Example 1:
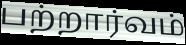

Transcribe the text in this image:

பற்றார்வம்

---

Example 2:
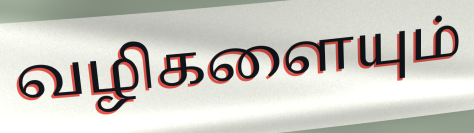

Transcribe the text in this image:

வழிகளையும்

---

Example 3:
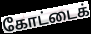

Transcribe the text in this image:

கோட்டைக்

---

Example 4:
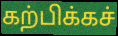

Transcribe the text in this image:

கற்பிக்கச்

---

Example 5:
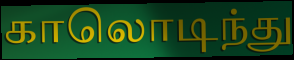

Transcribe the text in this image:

காலொடிந்து